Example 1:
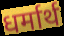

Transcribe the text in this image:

धर्मार्थ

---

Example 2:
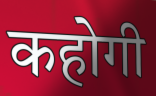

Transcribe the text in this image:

कहोगी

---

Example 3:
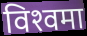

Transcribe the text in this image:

विश्वमा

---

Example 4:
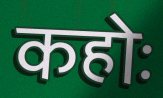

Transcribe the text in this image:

कहोः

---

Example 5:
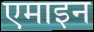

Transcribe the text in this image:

एमाइन